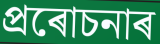
প্ৰৰোচনাৰ